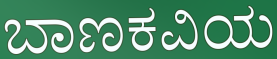
ಬಾಣಕವಿಯ